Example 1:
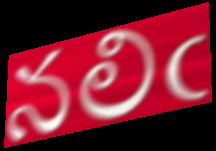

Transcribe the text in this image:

నలిఁ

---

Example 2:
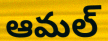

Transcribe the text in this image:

ఆమల్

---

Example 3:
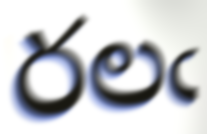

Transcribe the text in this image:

రలఁ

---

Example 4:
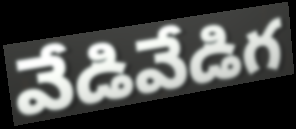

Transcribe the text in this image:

వేడివేడిగ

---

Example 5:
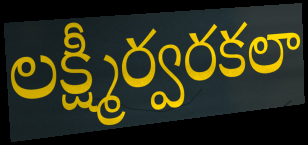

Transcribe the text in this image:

లక్ష్మీర్వరకలా